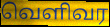
வெளிவர